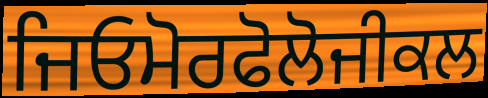
ਜਿਓਮੋਰਫੋਲੋਜੀਕਲ